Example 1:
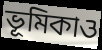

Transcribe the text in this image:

ভূমিকাও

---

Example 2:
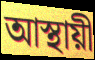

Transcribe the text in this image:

আস্থায়ী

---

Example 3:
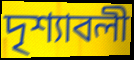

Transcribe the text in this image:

দৃশ্যাবলী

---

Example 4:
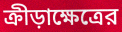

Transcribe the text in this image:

ক্রীড়াক্ষেত্রের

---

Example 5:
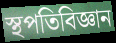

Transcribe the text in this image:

স্থপতিবিজ্ঞান